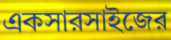
একসারসাইজের